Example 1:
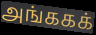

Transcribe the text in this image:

அங்ககக்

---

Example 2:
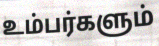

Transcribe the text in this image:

உம்பர்களும்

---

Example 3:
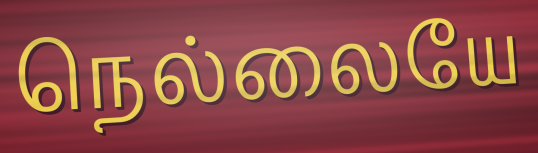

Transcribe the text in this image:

நெல்லையே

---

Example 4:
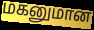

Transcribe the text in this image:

மகனுமான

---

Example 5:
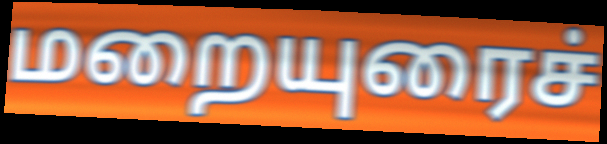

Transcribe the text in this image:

மறையுரைச்